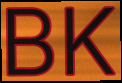
BK